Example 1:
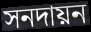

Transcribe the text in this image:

সনদায়ন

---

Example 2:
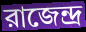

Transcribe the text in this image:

রাজেন্দ্র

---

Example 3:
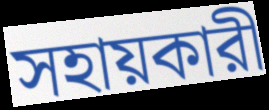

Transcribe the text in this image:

সহায়কারী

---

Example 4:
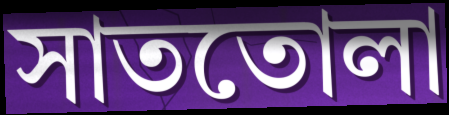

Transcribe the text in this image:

সাততোলা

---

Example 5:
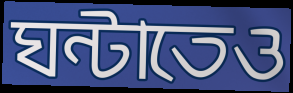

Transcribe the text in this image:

ঘন্টাতেও